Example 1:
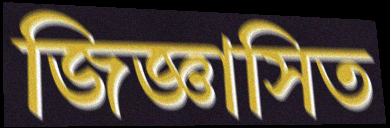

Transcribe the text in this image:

জিজ্ঞাসিত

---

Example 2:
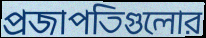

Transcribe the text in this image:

প্রজাপতিগুলোর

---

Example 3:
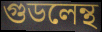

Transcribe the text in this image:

গুডলেন্থ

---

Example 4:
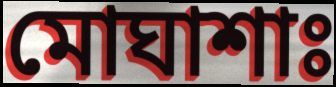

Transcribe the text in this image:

মোঘাশাঃ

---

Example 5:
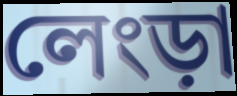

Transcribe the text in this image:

লেংড়া